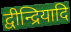
द्वीन्द्रियादि